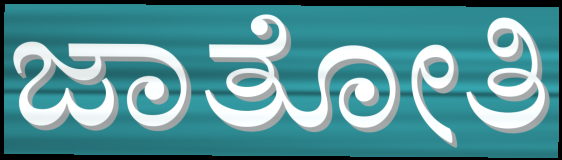
ಜಾತೋತಿ